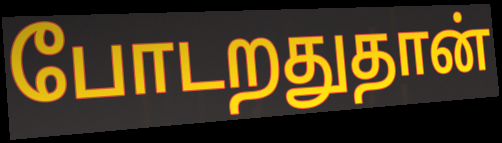
போடறதுதான்